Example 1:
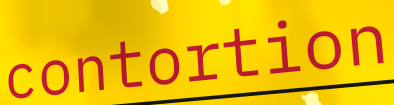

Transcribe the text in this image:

contortion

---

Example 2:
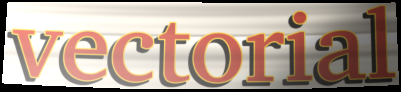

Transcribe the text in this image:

vectorial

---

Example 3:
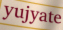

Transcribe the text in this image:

yujyate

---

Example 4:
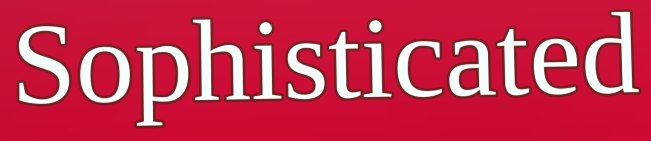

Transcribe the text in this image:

Sophisticated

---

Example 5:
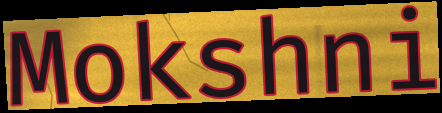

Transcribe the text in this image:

Mokshni